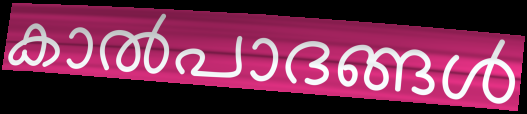
കാൽപാദങ്ങൾ